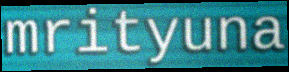
mrityuna